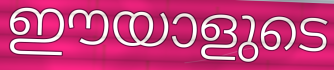
ഈയാളുടെ